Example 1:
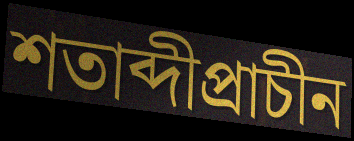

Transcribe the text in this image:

শতাব্দীপ্রাচীন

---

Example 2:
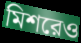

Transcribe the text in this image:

মিশরেও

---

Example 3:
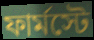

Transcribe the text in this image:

ফার্মস্টে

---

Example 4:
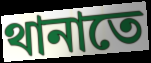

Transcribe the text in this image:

থানাতে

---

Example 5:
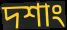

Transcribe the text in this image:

দশাং